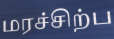
மரச்சிற்ப